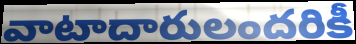
వాటాదారులందరికీ